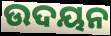
ଉଦୟନ